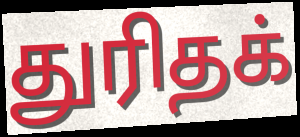
துரிதக்